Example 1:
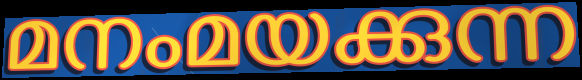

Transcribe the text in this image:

മനംമയക്കുന്ന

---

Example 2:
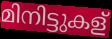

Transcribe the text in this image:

മിനിട്ടുകള്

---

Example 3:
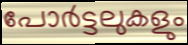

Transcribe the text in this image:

പോർട്ടലുകളും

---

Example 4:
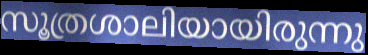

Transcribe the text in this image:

സൂത്രശാലിയായിരുന്നു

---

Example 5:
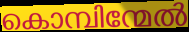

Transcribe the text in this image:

കൊമ്പിന്മേൽ